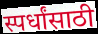
स्पर्धांसाठी